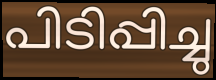
പിടിപ്പിച്ചു